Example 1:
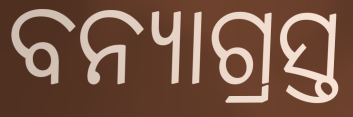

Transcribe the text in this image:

ବନ୍ୟାଗ୍ରସ୍ତ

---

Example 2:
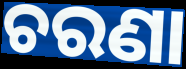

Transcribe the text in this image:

ଚରଣା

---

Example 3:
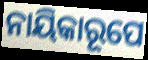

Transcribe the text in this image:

ନାୟିକାରୂପେ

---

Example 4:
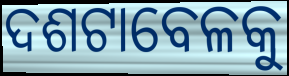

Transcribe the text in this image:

ଦଶଟାବେଳକୁ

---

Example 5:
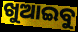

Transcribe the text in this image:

ଖୁଆଇବୁ